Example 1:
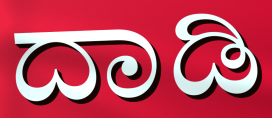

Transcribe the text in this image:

ದಾಡಿ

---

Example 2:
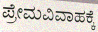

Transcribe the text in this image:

ಪ್ರೇಮವಿವಾಹಕ್ಕೆ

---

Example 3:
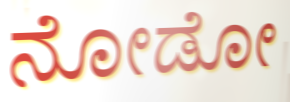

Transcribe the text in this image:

ನೋಡೋ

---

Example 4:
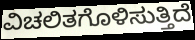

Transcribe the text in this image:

ವಿಚಲಿತಗೊಳಿಸುತ್ತಿದೆ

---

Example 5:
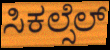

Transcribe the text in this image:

ಸಿಕಲ್ಸೆಲ್